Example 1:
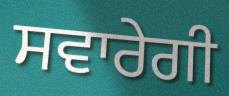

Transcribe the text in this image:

ਸਵਾਰੇਗੀ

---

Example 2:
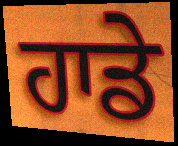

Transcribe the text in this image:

ਹਾਡੇ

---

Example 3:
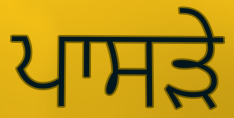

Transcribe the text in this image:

ਪਾਸੜੇ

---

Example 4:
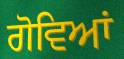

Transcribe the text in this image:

ਗੋਵਿਆਂ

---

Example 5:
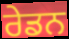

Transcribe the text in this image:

ਰੇਡਨ